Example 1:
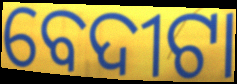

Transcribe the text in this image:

ବେଦୀଟା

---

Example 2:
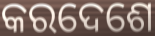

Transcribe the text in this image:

କରଦେଶେ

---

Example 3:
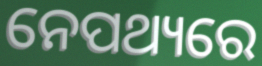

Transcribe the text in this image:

ନେପଥ୍ୟରେ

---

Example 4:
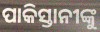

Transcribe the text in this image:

ପାକିସ୍ତାନୀଙ୍କୁ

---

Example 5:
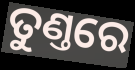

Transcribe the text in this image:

ତୁଣ୍ତରେ